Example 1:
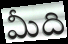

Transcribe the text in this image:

మీది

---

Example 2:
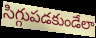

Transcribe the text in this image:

సిగ్గుపడకుండేలా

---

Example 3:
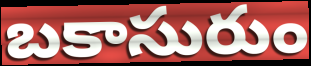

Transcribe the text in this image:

బకాసురుం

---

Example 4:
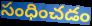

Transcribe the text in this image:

సంధించడం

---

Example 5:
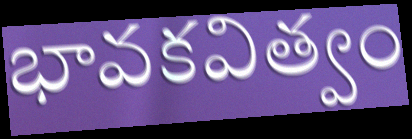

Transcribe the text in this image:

భావకవిత్వం